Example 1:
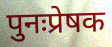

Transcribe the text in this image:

पुनःप्रेषक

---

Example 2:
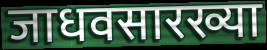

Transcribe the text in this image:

जाधवसारख्या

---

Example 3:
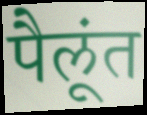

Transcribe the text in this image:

पैलूंत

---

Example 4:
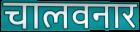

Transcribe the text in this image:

चालवनार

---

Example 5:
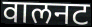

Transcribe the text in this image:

वालनट